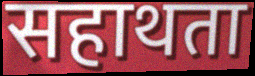
सहाथता